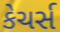
કેચર્સ